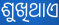
ଶୁଖିଥାଏ